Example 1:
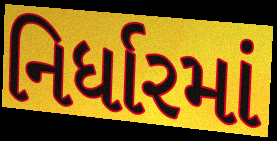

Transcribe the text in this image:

નિર્ધારમાં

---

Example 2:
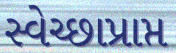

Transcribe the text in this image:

સ્વેચ્છાપ્રાપ્ત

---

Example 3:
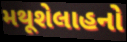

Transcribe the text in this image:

મથૂશેલાહનો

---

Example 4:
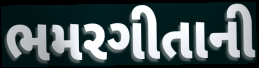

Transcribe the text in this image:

ભમરગીતાની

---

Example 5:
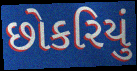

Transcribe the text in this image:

છોકરિયું